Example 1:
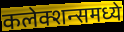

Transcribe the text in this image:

कलेक्शन्समध्ये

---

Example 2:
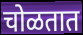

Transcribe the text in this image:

चोळतात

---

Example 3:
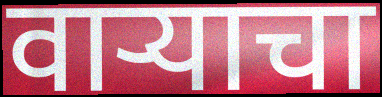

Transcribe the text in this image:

वाऱ्याचा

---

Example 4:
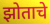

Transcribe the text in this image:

झोताचे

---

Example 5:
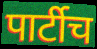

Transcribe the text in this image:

पार्टीच